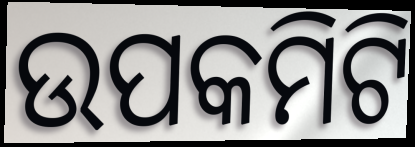
ଉପକମିଟି